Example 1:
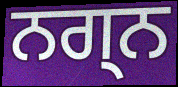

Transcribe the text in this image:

ਨਗ੍ਨ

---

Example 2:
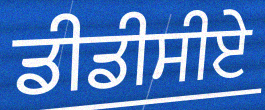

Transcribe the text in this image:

ਡੀਡੀਸੀਏ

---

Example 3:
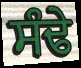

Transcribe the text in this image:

ਸੰਢੇ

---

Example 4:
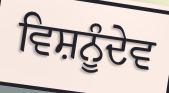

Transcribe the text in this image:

ਵਿਸ਼ਨੂੰਦੇਵ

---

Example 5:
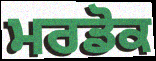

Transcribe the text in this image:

ਮਰਡੋਕ